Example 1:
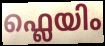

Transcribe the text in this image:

ഫ്ലെയിം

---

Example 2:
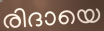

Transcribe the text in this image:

രിദായെ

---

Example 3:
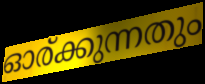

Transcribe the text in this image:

ഓര്ക്കുന്നതും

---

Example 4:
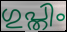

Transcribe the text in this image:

ഗുപ്തിം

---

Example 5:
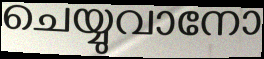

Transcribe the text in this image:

ചെയ്യുവാനോ